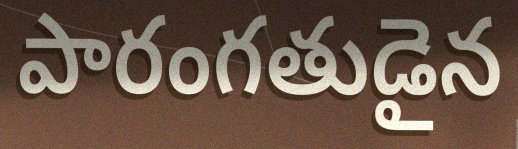
పారంగతుడైన